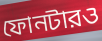
ফোনটারও